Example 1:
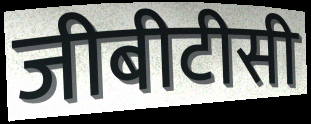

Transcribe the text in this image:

जीबीटीसी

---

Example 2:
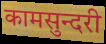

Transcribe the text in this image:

कामसुन्दरी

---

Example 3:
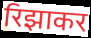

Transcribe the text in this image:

रिझाकर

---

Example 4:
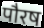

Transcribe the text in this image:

पौरष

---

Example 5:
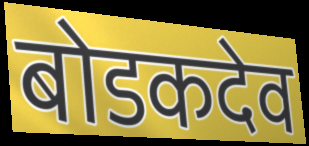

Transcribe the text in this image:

बोडकदेव